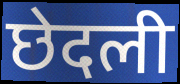
छेदली